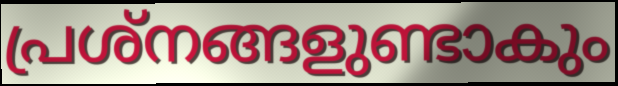
പ്രശ്നങ്ങളുണ്ടാകും